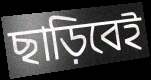
ছাড়িবেই